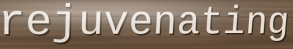
rejuvenating